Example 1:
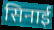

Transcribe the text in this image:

सिनाई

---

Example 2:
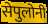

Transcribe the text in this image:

सेपुलोनी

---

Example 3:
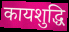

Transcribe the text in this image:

कायशुद्धि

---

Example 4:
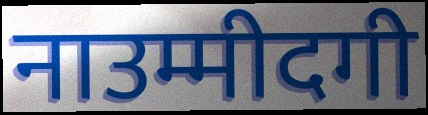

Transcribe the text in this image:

नाउम्मीदगी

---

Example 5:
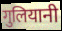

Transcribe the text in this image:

गुलियानी